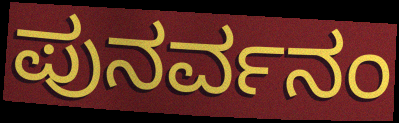
ಪುನರ್ವನಂ